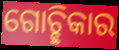
ଗୋଚ୍ଛିକାର